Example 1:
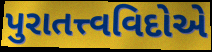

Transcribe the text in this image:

પુરાતત્ત્વવિદોએ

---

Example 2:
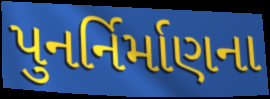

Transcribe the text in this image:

પુનર્નિર્માણના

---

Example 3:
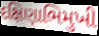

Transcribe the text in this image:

દક્ષિણાભિમુખી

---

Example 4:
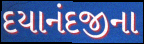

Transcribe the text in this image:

દયાનંદજીના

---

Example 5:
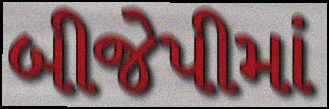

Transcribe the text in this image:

બીજેપીમાં